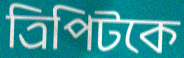
ত্রিপিটকে